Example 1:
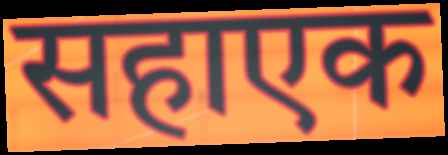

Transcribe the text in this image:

सहाएक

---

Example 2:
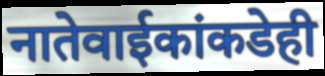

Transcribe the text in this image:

नातेवाईकांकडेही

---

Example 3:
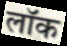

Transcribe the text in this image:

लॉक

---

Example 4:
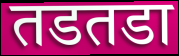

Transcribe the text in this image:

तडतडा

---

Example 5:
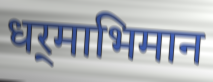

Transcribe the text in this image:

धर्माभिमान